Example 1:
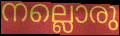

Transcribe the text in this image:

നല്ലൊരു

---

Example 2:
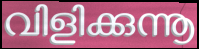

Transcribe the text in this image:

വിളിക്കുന്നൂ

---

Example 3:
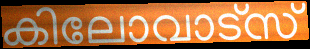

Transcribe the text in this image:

കിലോവാട്സ്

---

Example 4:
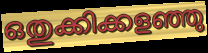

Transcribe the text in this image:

ഒതുക്കിക്കളഞ്ഞു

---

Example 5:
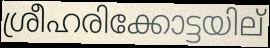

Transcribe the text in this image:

ശ്രീഹരിക്കോട്ടയില്